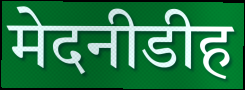
मेदनीडीह